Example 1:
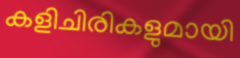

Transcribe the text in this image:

കളിചിരികളുമായി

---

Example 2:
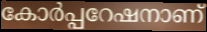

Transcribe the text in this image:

കോർപ്പറേഷനാണ്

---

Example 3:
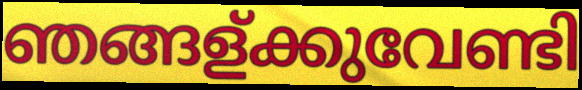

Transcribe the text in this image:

ഞങ്ങള്ക്കുവേണ്ടി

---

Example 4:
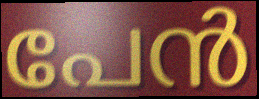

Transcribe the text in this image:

പേൻ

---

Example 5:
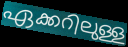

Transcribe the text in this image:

ഏക്കറിലുള്ള